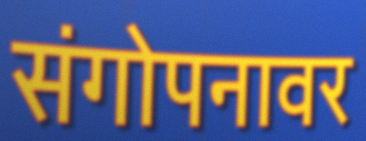
संगोपनावर